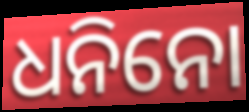
ଧନିନୋ